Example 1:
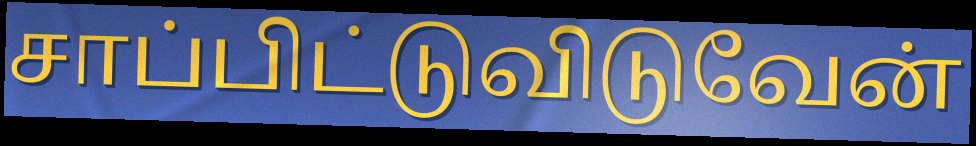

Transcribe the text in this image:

சாப்பிட்டுவிடுவேன்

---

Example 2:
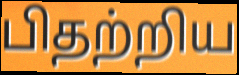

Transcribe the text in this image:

பிதற்றிய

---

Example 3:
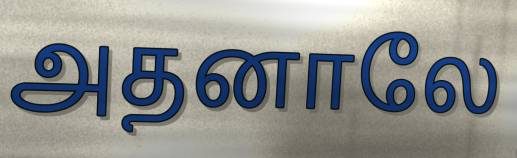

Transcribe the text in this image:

அதனாலே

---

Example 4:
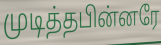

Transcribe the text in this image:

முடித்தபின்னரே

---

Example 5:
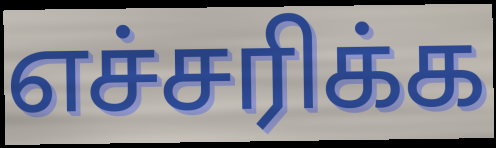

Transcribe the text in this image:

எச்சரிக்க